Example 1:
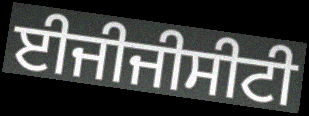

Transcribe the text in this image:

ਈਜੀਜੀਸੀਟੀ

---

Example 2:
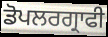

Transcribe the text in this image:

ਡੋਪਲਰਗ੍ਰਾਫੀ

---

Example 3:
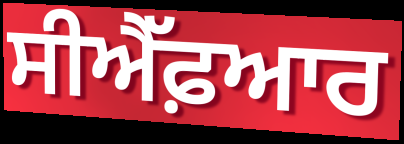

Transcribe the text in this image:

ਸੀਐੱਫ਼ਆਰ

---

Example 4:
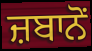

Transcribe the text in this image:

ਜ਼ਬਾਨੋਂ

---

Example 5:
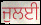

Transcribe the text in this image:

ਜੁਲਈ